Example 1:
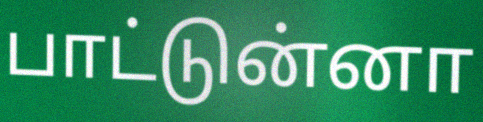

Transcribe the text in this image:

பாட்டுன்னா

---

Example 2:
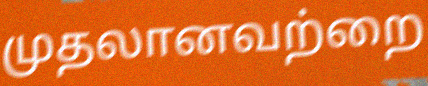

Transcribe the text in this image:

முதலானவற்றை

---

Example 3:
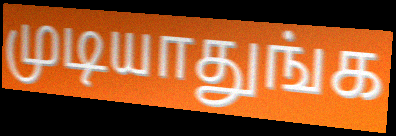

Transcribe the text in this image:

முடியாதுங்க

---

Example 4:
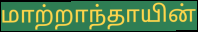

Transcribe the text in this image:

மாற்றாந்தாயின்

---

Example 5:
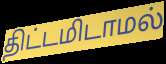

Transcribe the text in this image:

திட்டமிடாமல்